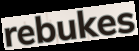
rebukes